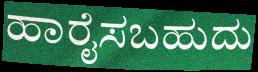
ಹಾರೈಸಬಹುದು